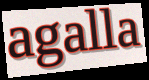
agalla